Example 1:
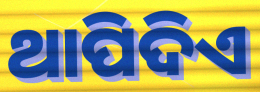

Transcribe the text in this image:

ଥାପିଦିଏ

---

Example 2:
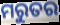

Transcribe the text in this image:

ମରୁତର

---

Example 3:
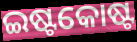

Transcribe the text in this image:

ଇଷ୍ଟକୋଷ୍ଟ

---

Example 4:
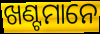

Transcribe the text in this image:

ଖଣ୍ଟମାନେ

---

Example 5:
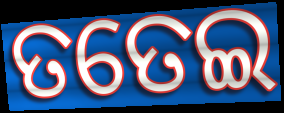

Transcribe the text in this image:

ତତେଇ